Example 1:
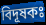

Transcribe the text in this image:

বিদূষকঃ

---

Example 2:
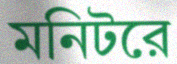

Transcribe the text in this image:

মনিটরে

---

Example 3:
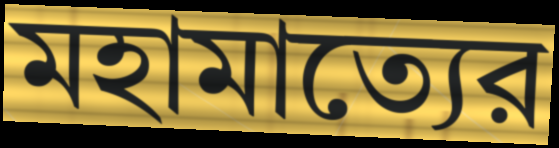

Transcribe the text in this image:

মহামাত্যের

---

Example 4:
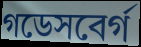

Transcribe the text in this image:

গডেসবের্গ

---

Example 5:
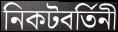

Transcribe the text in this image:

নিকটবর্তিনী